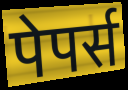
पेपर्स